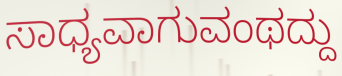
ಸಾಧ್ಯವಾಗುವಂಥದ್ದು